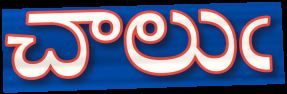
చాలుఁ